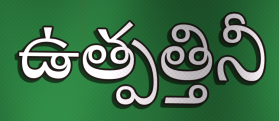
ఉత్పత్తినీ